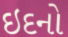
ઇદનો